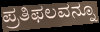
ಪ್ರತಿಫಲವನ್ನೂ